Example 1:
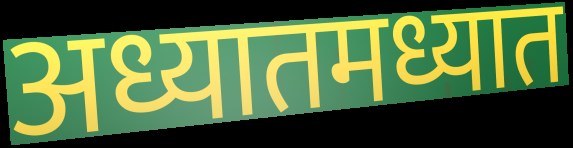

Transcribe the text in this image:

अध्यातमध्यात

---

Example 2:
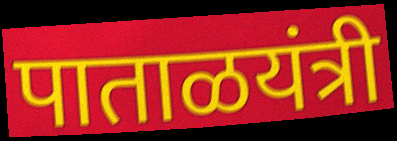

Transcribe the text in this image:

पाताळयंत्री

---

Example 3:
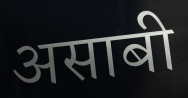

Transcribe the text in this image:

असाबी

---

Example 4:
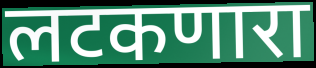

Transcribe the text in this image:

लटकणारा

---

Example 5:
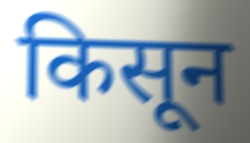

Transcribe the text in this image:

किसून